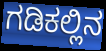
ಗಡಿಕಲ್ಲಿನ